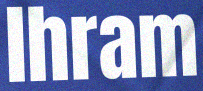
lhram